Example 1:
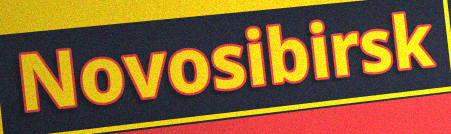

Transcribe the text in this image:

Novosibirsk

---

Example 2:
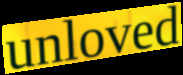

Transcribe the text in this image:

unloved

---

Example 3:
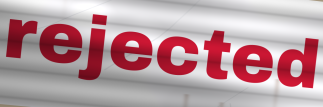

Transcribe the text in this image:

rejected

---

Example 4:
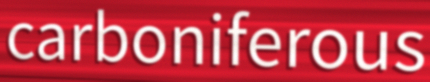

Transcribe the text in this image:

carboniferous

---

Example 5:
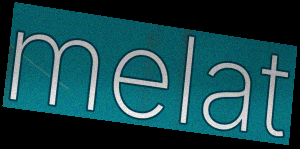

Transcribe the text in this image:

melat